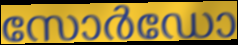
സോർഡോ